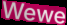
Wewe